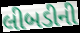
લીબડીની